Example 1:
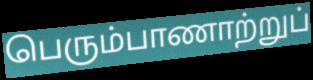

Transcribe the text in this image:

பெரும்பாணாற்றுப்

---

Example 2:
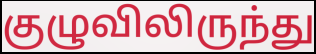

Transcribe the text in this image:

குழுவிலிருந்து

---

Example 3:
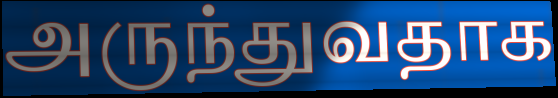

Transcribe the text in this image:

அருந்துவதாக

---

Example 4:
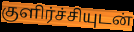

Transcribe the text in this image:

குளிர்ச்சியுடன்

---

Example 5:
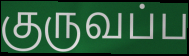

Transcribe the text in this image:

குருவப்ப